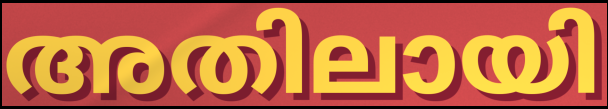
അതിലായി